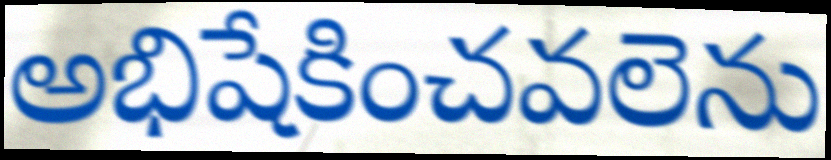
అభిషేకించవలెను